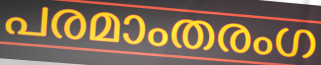
പരമാംതരംഗ